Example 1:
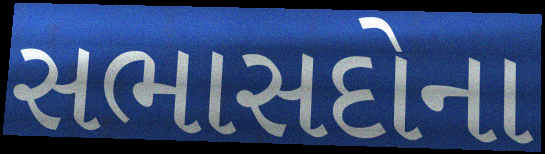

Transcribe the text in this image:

સભાસદોના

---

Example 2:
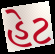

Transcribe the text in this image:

હેટ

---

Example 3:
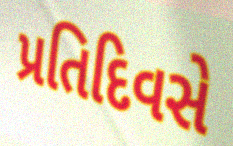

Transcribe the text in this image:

પ્રતિદિવસે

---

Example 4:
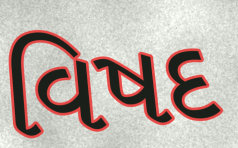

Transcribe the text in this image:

વિષદ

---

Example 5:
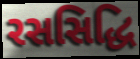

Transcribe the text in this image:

રસસિદ્ધિ